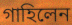
গাহিলেন